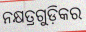
ନକ୍ଷତ୍ରଗୁଡ଼ିକର